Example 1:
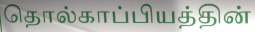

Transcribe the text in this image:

தொல்காப்பியத்தின்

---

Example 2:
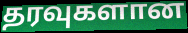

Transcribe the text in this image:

தரவுகளான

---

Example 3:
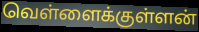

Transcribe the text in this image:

வெள்ளைக்குள்ளன்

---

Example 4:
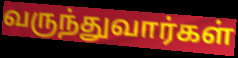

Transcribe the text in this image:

வருந்துவார்கள்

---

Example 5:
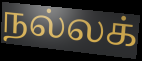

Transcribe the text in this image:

நல்லக்